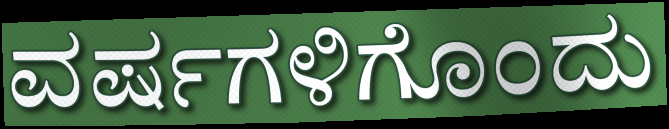
ವರ್ಷಗಳಿಗೊಂದು